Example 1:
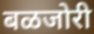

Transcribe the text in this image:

बळजोरी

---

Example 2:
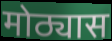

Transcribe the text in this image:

मोठ्यास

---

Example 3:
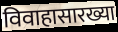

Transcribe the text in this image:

विवाहासारख्या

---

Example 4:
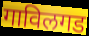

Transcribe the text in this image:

गाविलगड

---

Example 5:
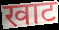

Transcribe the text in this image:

खाट